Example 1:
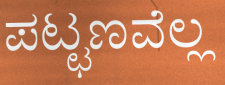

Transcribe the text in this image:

ಪಟ್ಟಣವೆಲ್ಲ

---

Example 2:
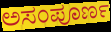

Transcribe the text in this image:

ಅಸಂಪೂರ್ಣ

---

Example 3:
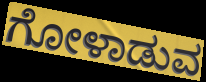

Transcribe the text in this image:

ಗೋಳಾಡುವ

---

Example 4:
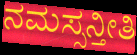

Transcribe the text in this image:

ನಮಸ್ಸನ್ತೀತಿ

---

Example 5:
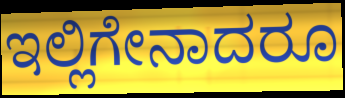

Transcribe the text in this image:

ಇಲ್ಲಿಗೇನಾದರೂ